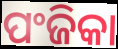
ପଂଜିକା